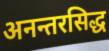
अनन्तरसिद्ध